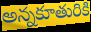
అన్నకూతురికి